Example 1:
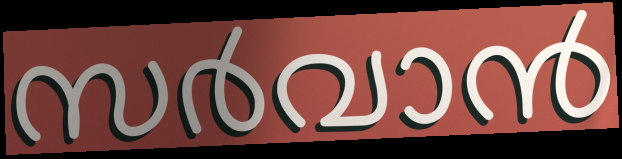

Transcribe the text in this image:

സർവാൻ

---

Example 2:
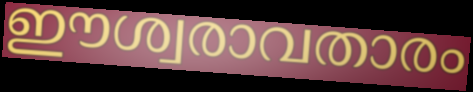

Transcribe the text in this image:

ഈശ്വരാവതാരം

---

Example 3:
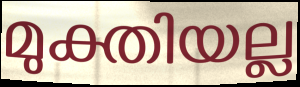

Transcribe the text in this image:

മുക്തിയല്ല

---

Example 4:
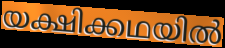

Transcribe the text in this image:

യക്ഷിക്കഥയിൽ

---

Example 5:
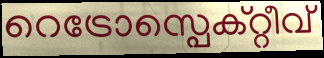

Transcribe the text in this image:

റെട്രോസ്പെക്റ്റീവ്